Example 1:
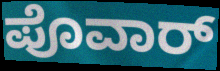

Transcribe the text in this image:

ಪೊವಾರ್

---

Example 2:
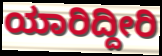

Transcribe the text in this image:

ಯಾರಿದ್ದೀರಿ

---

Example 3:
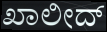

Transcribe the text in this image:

ಖಾಲೀದ್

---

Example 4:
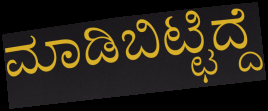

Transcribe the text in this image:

ಮಾಡಿಬಿಟ್ಟಿದ್ದೆ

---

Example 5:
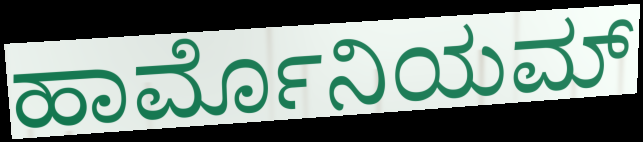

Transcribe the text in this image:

ಹಾರ್ಮೊನಿಯಮ್